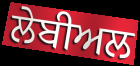
ਲੇਬੀਅਲ